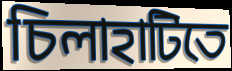
চিলাহাটিতে